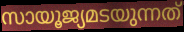
സായൂജ്യമടയുന്നത്